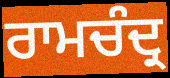
ਰਾਮਚੰਦ੍ਰ